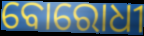
ବୋରୋଧୀ